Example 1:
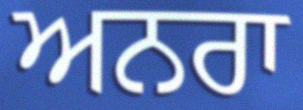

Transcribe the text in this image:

ਅਨਰਾ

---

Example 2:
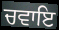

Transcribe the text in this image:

ਚਵਾਇ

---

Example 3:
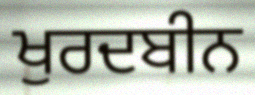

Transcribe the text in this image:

ਖੁਰਦਬੀਨ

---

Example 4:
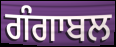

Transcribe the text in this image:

ਗੰਗਾਬਲ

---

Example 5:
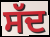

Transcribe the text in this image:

ਸੱਦ